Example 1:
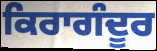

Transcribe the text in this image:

ਕਿਰਾਗੰਦੂਰ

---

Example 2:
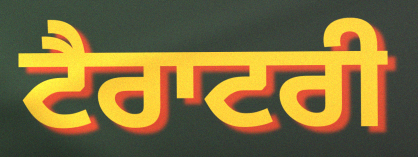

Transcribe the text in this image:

ਟੈਰਾਟਰੀ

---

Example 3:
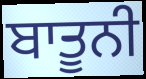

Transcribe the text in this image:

ਬਾਤੂਨੀ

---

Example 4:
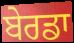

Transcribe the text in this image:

ਬੇਰਡਾ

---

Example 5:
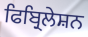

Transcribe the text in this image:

ਫਿਬ੍ਰਿਲੇਸ਼ਨ